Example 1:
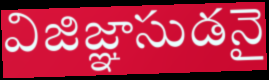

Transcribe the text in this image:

విజిజ్ఞాసుడనై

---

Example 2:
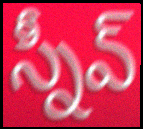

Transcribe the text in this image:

స్నీవ్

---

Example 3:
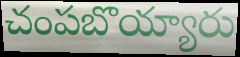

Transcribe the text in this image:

చంపబొయ్యారు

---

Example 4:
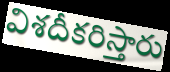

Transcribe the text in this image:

విశదీకరిస్తారు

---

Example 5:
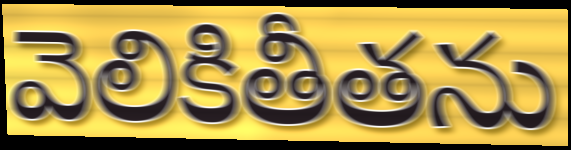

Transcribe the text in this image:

వెలికితీతను